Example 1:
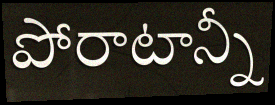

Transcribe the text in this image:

పోరాటాన్నీ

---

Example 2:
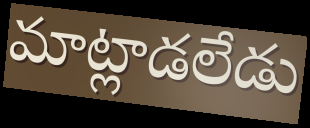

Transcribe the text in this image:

మాట్లాడలేడు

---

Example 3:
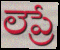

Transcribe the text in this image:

లెప్రే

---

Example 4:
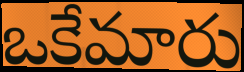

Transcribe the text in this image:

ఒకేమారు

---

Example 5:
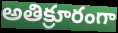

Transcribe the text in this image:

అతిక్రూరంగా